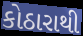
કોઠારાથી